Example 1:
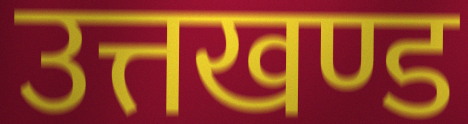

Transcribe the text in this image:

उत्तखण्ड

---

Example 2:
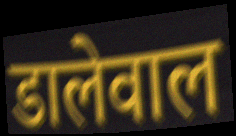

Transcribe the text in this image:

डालेवाल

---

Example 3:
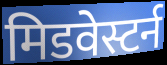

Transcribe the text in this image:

मिडवेस्टर्न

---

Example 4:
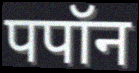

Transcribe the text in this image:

पपॉन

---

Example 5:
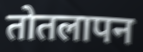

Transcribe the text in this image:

तोतलापन